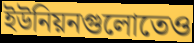
ইউনিয়নগুলোতেও